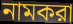
নামকরা